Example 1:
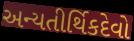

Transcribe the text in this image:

અન્યતીર્થિકદેવો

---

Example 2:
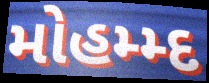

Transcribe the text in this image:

મોહમ્મ્દ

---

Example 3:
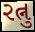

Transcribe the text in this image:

રત્નુ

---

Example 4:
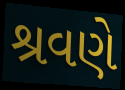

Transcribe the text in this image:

શ્રવણે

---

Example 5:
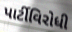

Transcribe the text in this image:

પાર્ટીવિરોધી